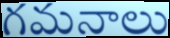
గమనాలు